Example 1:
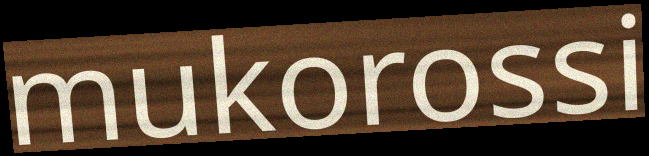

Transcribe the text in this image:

mukorossi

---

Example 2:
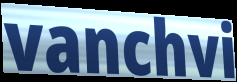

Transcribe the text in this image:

vanchvi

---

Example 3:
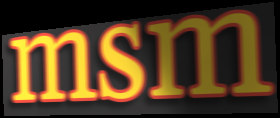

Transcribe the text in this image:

msm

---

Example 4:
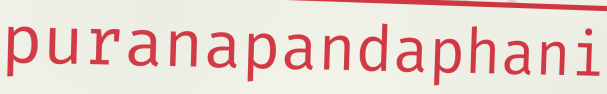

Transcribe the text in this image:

puranapandaphani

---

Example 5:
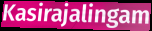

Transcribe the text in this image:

Kasirajalingam